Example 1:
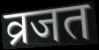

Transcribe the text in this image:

व्रजत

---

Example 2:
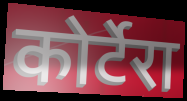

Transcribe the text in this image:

कोर्टेरा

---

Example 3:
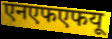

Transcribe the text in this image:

एनएफएफयू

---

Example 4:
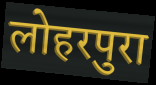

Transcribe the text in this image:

लोहरपुरा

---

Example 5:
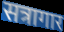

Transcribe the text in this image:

सत्रागार